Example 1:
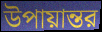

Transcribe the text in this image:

উপায়ান্তর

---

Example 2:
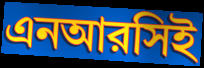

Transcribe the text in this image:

এনআরসিই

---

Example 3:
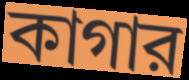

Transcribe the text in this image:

কাগার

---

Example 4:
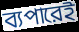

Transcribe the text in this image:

ব্যপারেই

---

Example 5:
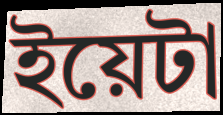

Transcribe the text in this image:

ইয়েটা